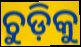
ଚୁଡ଼ିକୁ